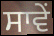
ਸਾਵੇਂ